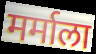
मर्माला